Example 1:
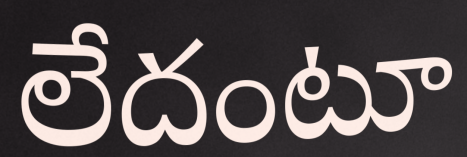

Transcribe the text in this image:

లేదంటూ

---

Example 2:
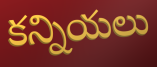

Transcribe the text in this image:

కన్నియలు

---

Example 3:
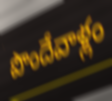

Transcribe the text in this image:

పొందేవాళ్లం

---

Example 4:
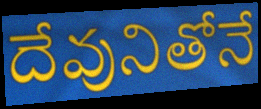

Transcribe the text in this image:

దేవునితోనే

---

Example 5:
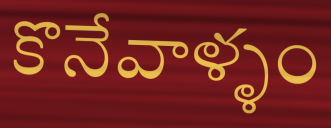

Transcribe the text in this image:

కొనేవాళ్ళం